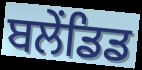
ਬਲੇਂਡਿਡ